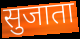
सुजाता